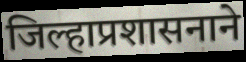
जिल्हाप्रशासनाने